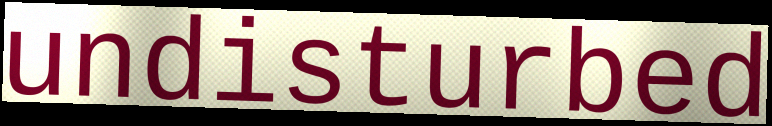
undisturbed